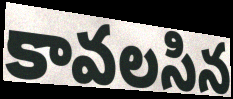
కావలసిన